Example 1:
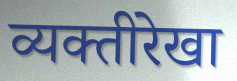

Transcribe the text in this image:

व्यक्तीरेखा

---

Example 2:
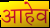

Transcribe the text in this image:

आहेव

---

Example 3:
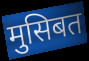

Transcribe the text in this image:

मुसिबत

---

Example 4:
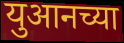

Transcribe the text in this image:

युआनच्या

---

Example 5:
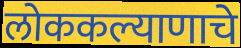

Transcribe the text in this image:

लोककल्याणाचे